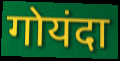
गोयंदा